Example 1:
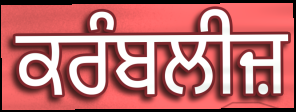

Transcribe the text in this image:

ਕਰੰਬਲੀਜ਼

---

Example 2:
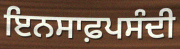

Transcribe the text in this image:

ਇਨਸਾਫ਼ਪਸੰਦੀ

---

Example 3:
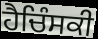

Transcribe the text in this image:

ਹੈਚਿੰਸਕੀ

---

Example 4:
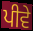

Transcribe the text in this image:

ਪੀਵੇ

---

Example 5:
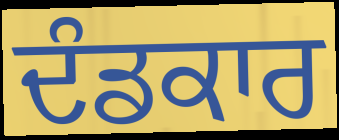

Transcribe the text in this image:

ਦੰਡਕਾਰ